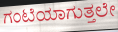
ಗಂಟೆಯಾಗುತ್ತಲೇ